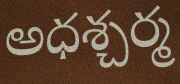
అధశ్చర్మ